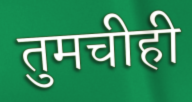
तुमचीही